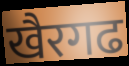
खैरगढ